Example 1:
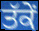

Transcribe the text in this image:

ਤੱਕੇਂ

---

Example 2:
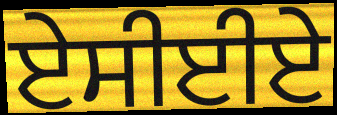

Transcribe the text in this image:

ਏਸੀਈਏ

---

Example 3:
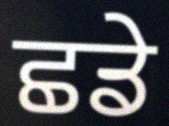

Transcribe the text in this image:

ਛਡੇ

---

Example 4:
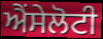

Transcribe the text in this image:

ਐਂਸੇਲੋਟੀ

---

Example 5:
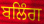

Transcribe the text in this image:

ਬਲਿੰਗ